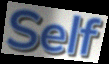
Self